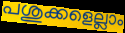
പശുക്കളെല്ലാം